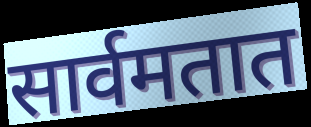
सार्वमतात